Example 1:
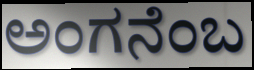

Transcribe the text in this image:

ಅಂಗನೆಂಬ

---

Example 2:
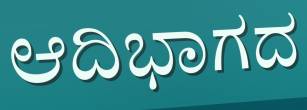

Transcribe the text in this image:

ಆದಿಭಾಗದ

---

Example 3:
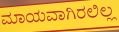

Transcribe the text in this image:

ಮಾಯವಾಗಿರಲಿಲ್ಲ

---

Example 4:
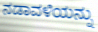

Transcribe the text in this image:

ನಡಾವಳಿಯನ್ನು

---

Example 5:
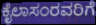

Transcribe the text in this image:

ಕೈಲಾಸಂರವರಿಗೆ